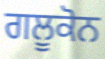
ਗਲੂਕੋਨ